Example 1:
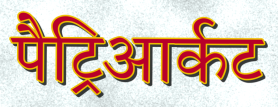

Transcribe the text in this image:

पैट्रिआर्कट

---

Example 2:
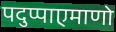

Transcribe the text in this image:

पदुप्पाएमाणो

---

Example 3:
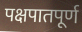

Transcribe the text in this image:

पक्षपातपूर्ण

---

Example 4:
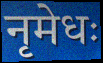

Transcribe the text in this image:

नृमेधः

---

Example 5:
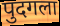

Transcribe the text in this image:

पुदगला